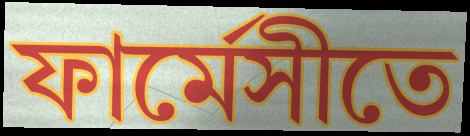
ফার্মেসীতে